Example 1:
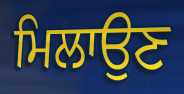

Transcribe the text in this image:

ਮਿਲਾਉਣ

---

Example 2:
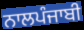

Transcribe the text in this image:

ਨਾਲਪੰਜਾਬੀ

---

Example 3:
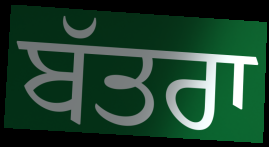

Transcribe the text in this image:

ਬੱਤਰਾ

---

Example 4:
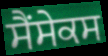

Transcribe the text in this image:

ਸੈਂਸੇਕਸ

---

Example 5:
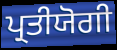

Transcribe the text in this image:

ਪ੍ਰਤੀਯੋਗੀ